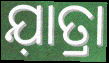
ଯ଼ାତ୍ରା